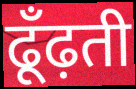
ढूँढ़ती